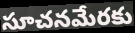
సూచనమేరకు